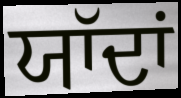
ਯਾੱਦਾਂ